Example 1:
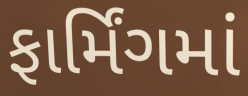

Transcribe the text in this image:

ફાર્મિંગમાં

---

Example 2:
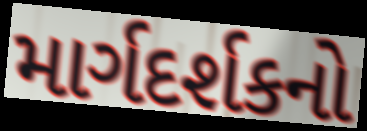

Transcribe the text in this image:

માર્ગદર્શકનો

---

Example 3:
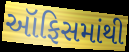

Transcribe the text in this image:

ઑફિસમાંથી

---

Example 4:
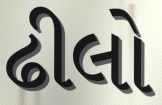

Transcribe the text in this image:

ઢીલો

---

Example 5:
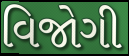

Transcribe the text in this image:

વિજોગી